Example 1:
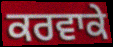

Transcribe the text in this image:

ਕਰਵਾਕੇ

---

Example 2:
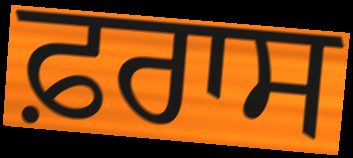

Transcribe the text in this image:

ਫ਼ਰਾਸ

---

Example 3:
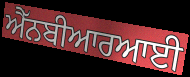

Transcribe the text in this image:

ਐੱਨਬੀਆਰਆਈ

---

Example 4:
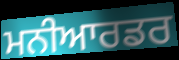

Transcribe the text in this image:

ਮਨੀਆਰਡਰ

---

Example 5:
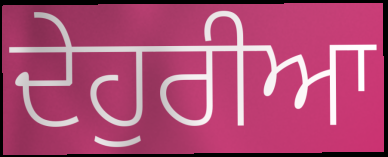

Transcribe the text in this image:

ਦੇਹੁਰੀਆ